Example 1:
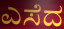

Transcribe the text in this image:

ಎಸೆದ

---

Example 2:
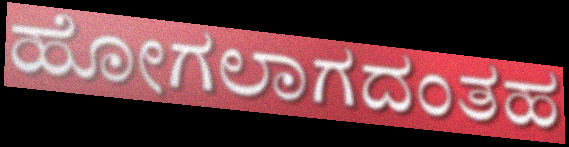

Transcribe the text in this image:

ಹೋಗಲಾಗದಂತಹ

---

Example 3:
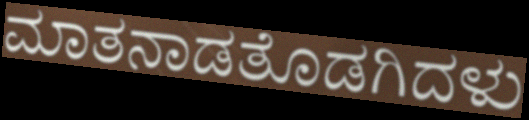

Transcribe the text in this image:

ಮಾತನಾಡತೊಡಗಿದಳು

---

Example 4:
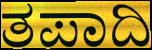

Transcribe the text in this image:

ತಪಾದಿ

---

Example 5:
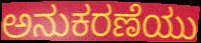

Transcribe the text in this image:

ಅನುಕರಣೆಯು